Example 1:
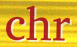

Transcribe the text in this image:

chr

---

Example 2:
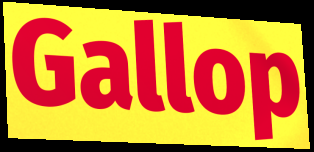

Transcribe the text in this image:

Gallop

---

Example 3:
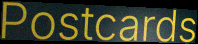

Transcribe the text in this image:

Postcards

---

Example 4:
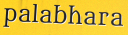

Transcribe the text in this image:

palabhara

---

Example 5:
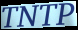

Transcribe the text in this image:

TNTP